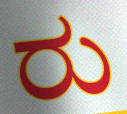
ರು